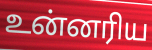
உன்னரிய